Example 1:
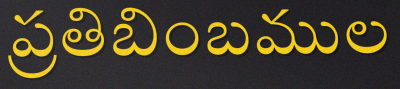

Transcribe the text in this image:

ప్రతిబింబముల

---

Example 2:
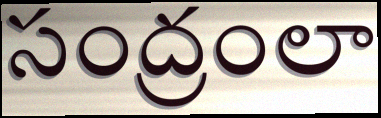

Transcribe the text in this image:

సంద్రంలా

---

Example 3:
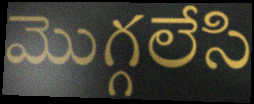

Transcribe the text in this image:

మొగ్గలేసి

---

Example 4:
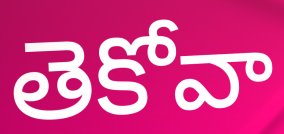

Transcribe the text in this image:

తెకోవా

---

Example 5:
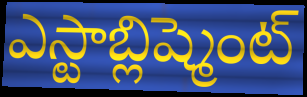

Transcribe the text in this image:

ఎస్టాబ్లిష్మెంట్